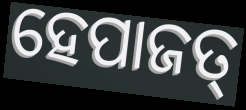
ହେପାଜତ୍